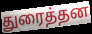
துரைத்தன